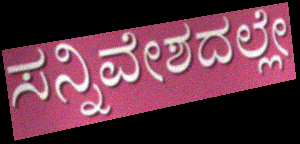
ಸನ್ನಿವೇಶದಲ್ಲೇ